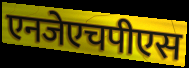
एनजेएचपीएस